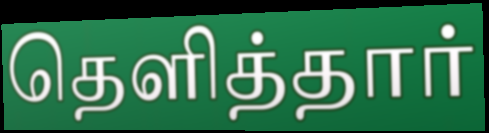
தெளித்தார்